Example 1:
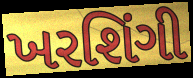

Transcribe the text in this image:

ખરશિંગી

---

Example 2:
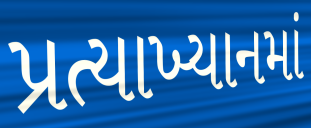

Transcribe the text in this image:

પ્રત્યાખ્યાનમાં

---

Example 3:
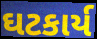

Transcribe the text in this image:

ઘટકાર્ય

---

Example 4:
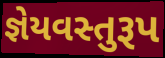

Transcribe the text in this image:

જ્ઞેયવસ્તુરૂપ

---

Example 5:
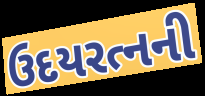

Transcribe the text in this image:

ઉદયરત્નની